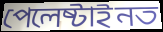
পেলেষ্টাইনত